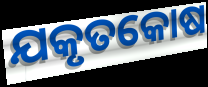
ଯକୃତକୋଷ